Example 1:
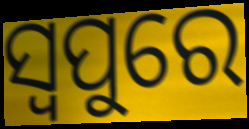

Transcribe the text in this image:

ସ୍ୱପୁରେ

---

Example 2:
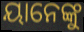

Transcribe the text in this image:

ୟାନେଙ୍କୁ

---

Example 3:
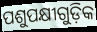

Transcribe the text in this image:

ପଶୁପକ୍ଷୀଗୁଡ଼ିକ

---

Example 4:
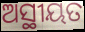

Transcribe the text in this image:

ଅସ୍ଥୀୟତ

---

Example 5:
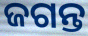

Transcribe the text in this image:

ଜଗନ୍ତ